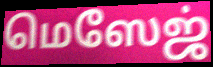
மெஸேஜ்